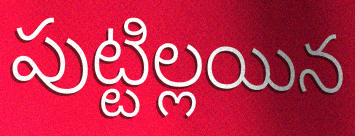
పుట్టిల్లయిన